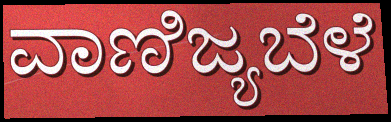
ವಾಣಿಜ್ಯಬೆಳೆ